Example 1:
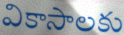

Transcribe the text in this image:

వికాసాలకు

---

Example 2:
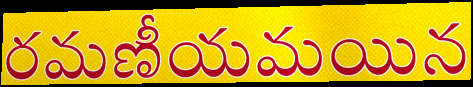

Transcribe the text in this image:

రమణీయమయిన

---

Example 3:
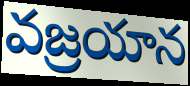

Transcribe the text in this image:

వజ్రయాన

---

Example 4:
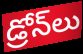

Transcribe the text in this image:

డ్రోన్‌లు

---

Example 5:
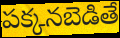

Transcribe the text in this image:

పక్కనబెడితే